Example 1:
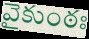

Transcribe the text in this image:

వైకుంఠః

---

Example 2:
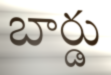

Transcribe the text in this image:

బార్డు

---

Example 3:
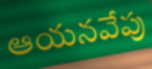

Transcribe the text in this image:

ఆయనవేపు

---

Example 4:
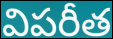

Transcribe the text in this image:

విపరీత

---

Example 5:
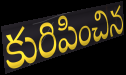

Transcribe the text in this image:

కురిపించిన